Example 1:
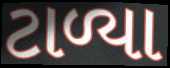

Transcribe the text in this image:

ટાળ્યા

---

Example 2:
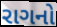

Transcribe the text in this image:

રાગનો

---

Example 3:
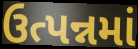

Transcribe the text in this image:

ઉત્પન્નમાં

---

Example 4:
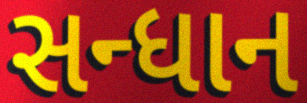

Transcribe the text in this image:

સન્ધાન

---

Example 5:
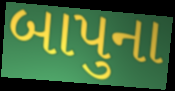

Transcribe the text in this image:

બાપુના